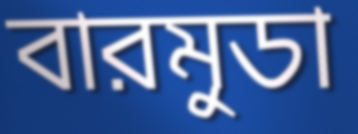
বারমুডা